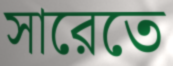
সারেতে